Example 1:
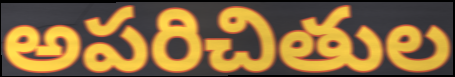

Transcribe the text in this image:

అపరిచితుల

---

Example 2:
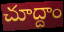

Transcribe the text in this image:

చూద్దాం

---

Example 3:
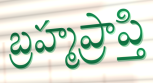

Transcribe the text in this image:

బ్రహ్మప్రాప్తి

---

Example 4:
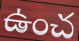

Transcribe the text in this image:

ఉంచ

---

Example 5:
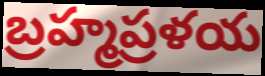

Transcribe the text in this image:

బ్రహ్మప్రళయ